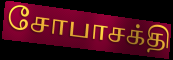
சோபாசக்தி